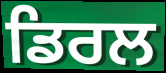
ਡਿਰਲ